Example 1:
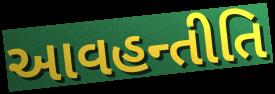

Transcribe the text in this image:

આવહન્તીતિ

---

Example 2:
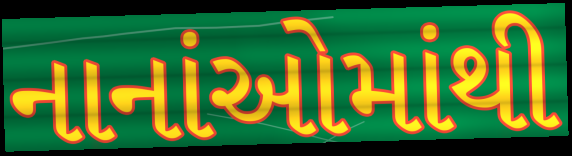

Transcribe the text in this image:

નાનાંઓમાંથી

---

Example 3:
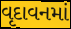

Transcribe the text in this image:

વૃદાવનમાં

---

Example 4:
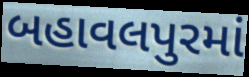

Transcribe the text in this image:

બહાવલપુરમાં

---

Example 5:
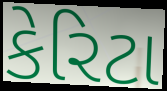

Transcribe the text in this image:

કેરિટા